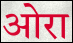
ओरा